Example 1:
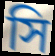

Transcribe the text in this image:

সি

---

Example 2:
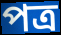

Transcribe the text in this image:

পত্ৰ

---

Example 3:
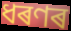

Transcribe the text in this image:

ধৰণৰ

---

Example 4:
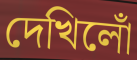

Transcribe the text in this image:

দেখিলোঁ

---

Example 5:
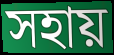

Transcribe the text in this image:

সহায়